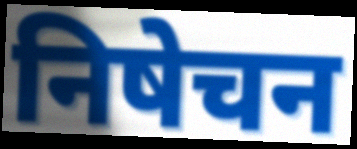
निषेचन